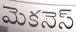
మెకనెస్